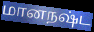
மானநஷ்ட